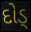
દોડ્